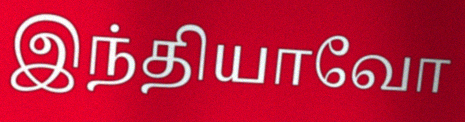
இந்தியாவோ